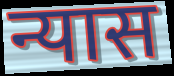
न्‍यास